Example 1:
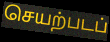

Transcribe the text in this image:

செயற்படப்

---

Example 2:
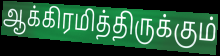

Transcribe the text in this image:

ஆக்கிரமித்திருக்கும்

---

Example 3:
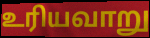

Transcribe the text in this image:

உரியவாறு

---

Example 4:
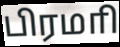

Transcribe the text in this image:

பிரமரி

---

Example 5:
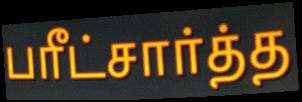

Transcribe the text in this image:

பரீட்சார்த்த